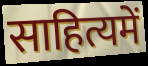
साहित्यमें